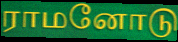
ராமனோடு